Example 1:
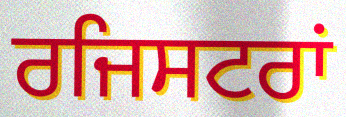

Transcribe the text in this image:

ਰਜਿਸਟਰਾਂ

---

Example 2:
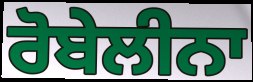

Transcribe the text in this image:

ਰੋਬੇਲੀਨਾ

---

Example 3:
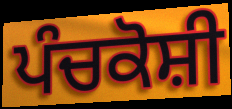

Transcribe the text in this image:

ਪੰਚਕੋਸ਼ੀ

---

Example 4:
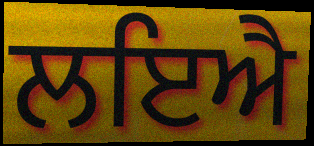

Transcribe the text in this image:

ਲਇਐ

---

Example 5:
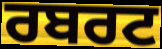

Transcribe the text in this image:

ਰਬਰਟ